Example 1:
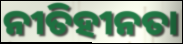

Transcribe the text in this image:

ନୀତିହୀନତା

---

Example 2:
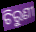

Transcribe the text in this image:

ଚିରୁଣୀ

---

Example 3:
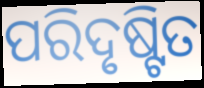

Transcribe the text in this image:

ପରିଦୃଷ୍ଟିତ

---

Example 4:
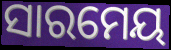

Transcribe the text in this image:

ସାରମେୟ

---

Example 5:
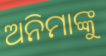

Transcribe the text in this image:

ଅନିମାଙ୍କୁ